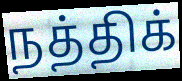
நத்திக்